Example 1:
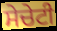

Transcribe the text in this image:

ਸੇਚੇਟੀ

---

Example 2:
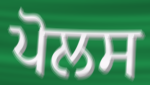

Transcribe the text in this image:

ਪੋਲਸ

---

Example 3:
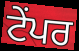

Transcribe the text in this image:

ਟੇਂਪਰ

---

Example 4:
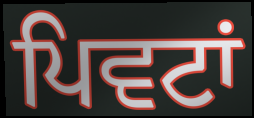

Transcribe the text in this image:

ਪਿਵਟਾਂ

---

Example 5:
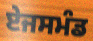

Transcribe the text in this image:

ਏਜਸਮੰਡ